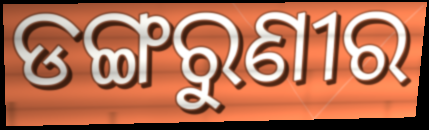
ଡଙ୍ଗରୁଣୀର